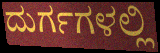
ದುರ್ಗಗಳಲ್ಲಿ